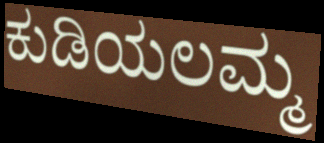
ಕುಡಿಯಲಮ್ಮ